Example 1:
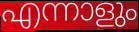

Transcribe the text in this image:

എന്നാളും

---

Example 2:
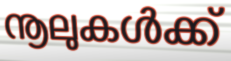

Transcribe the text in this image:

നൂലുകൾക്ക്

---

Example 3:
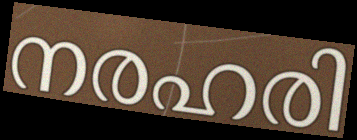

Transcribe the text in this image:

നരഹരി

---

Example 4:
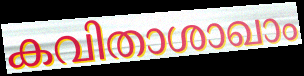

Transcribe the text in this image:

കവിതാശാഖാം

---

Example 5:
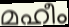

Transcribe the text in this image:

മഹീം